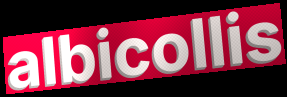
albicollis